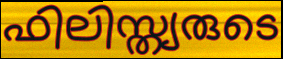
ഫിലിസ്ത്യരുടെ